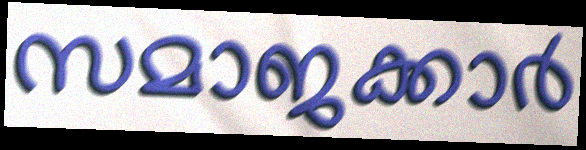
സമാജക്കാർ